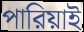
পারিয়াই